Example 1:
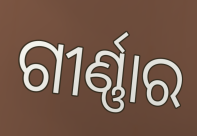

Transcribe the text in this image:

ଗୀର୍ଣ୍ଣାର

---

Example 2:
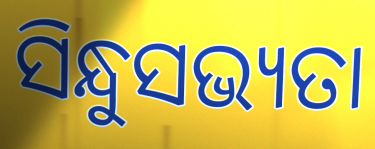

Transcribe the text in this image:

ସିନ୍ଧୁସଭ୍ୟତା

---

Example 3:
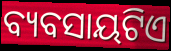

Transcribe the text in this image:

ବ୍ୟବସାୟଟିଏ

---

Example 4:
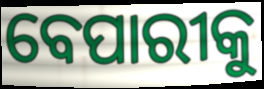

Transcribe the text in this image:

ବେପାରୀକୁ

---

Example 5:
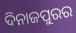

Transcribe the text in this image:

ଦିନାଜପୁରର